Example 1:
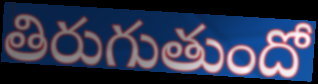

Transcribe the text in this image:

తిరుగుతుందో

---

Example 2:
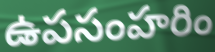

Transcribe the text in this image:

ఉపసంహరిం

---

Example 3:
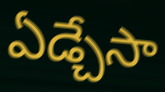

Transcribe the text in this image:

ఏడ్చేసా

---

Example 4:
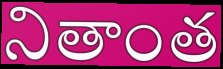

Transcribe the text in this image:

నితాంత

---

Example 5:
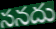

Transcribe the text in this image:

సనదు